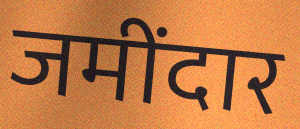
जमींदार